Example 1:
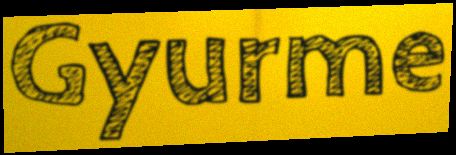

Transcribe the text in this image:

Gyurme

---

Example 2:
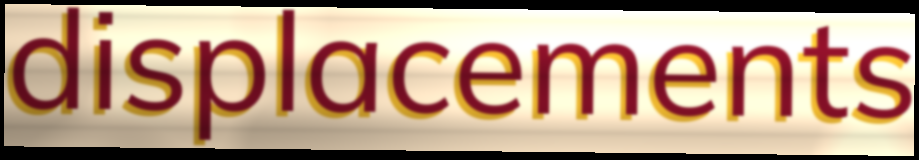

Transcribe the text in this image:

displacements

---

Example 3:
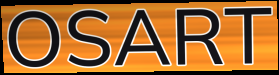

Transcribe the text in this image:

OSART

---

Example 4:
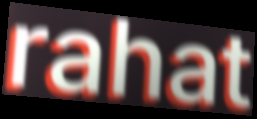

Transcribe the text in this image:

rahat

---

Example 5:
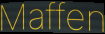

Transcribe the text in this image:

Maffen